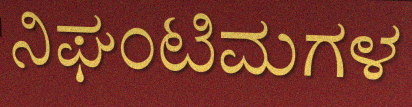
ನಿಘಂಟಿಮಗಳ